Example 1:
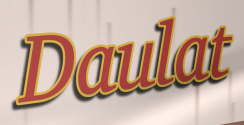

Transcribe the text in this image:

Daulat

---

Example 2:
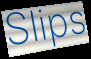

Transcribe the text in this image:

Slips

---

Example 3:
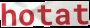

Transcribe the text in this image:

hotat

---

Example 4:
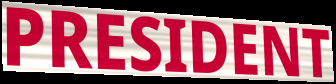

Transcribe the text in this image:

PRESIDENT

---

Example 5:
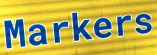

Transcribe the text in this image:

Markers